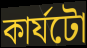
কাৰ্যটো